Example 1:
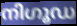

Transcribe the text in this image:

നിഗൂഡ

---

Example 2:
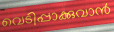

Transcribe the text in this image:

വെടിപ്പാക്കുവാൻ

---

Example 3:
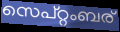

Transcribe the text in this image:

സെപ്റ്റംബര്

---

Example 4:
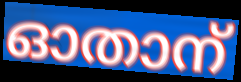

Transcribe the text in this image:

ഓതാന്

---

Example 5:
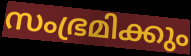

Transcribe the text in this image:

സംഭ്രമിക്കും